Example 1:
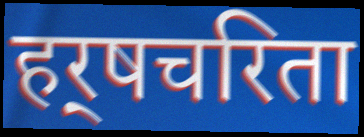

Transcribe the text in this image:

हर्षचरिता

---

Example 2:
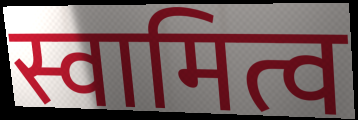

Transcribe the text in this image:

स्वामित्व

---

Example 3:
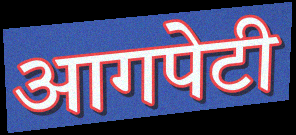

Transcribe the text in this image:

आगपेटी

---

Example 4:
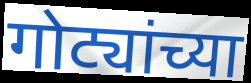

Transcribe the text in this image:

गोट्यांच्या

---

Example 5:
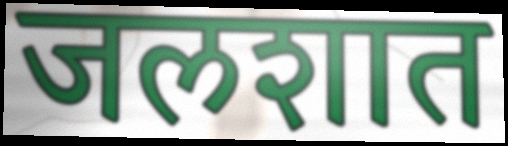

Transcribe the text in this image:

जलशात